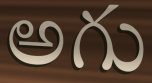
అగు